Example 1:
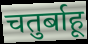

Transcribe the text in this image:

चतुर्बाहू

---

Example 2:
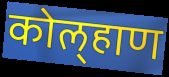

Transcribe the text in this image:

कोल्हाण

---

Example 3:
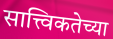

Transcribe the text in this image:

सात्त्विकतेच्या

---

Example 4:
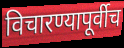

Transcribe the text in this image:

विचारण्यापूर्वीच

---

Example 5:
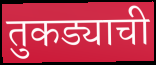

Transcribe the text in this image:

तुकड्याची